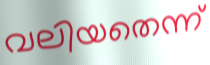
വലിയതെന്ന്